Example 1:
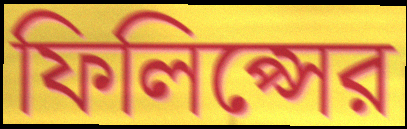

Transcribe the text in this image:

ফিলিপ্সের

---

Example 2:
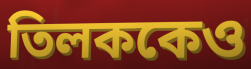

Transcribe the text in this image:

তিলককেও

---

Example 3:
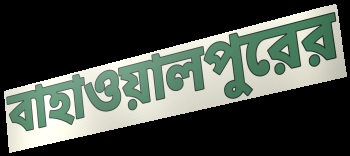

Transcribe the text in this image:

বাহাওয়ালপুরের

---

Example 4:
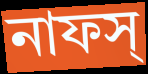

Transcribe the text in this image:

নাফস্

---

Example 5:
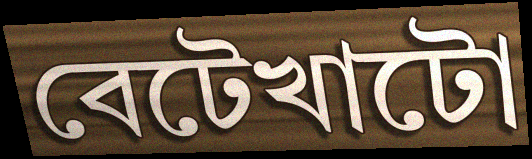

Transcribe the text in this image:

বেটেখাটো